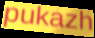
pukazh